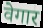
वेगार